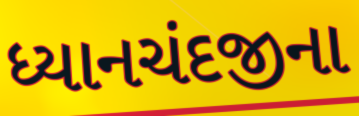
ધ્યાનચંદજીના